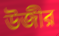
উজীর